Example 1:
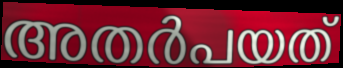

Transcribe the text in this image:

അതർപയത്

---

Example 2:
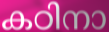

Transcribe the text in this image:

കഠിനാ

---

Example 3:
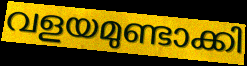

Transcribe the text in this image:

വളയമുണ്ടാക്കി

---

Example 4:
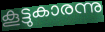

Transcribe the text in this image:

കൂട്ടുകാരന്നു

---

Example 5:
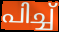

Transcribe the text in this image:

പിച്ച്